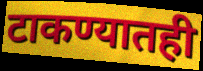
टाकण्यातही